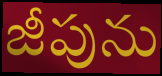
జీపును